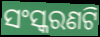
ସଂସ୍କରଣଟି